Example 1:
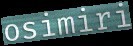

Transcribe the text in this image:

osimiri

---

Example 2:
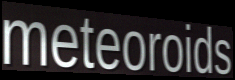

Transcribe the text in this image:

meteoroids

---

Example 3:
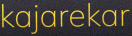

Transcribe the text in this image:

kajarekar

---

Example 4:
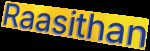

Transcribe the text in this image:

Raasithan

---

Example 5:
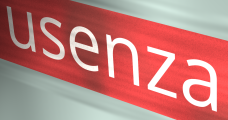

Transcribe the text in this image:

usenza